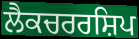
ਲੈਕਚਰਰਸ਼ਿਪ